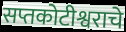
सप्तकोटीश्वराचे